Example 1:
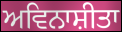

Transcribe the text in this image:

ਅਵਿਨਾਸ਼ੀਤਾ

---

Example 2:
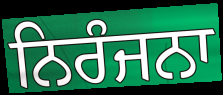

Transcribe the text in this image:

ਨਿਰੰਜਨਾ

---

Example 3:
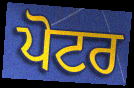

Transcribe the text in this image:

ਪੋਟਰ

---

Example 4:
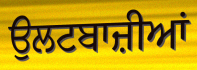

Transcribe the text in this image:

ਉਲਟਬਾਜ਼ੀਆਂ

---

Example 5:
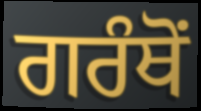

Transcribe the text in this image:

ਗਰੰਥੋਂ